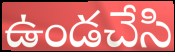
ఉండచేసి